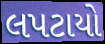
લપટાયો